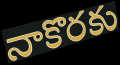
నాకొరకు